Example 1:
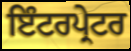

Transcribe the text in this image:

ਇੰਟਰਪ੍ਰੇਟਰ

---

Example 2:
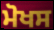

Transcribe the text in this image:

ਮੋਖਸ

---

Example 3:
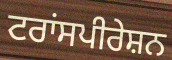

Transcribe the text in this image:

ਟਰਾਂਸਪੀਰੇਸ਼ਨ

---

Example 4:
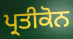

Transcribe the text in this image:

ਪ੍ਰਤੀਕੋਨ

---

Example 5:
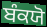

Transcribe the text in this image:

ਬੰਕਯੋ